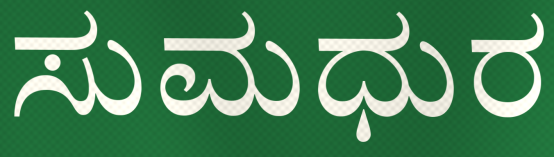
ಸುಮಧುರ